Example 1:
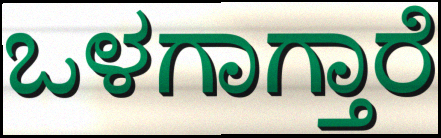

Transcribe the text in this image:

ಒಳಗಾಗ್ತಾರೆ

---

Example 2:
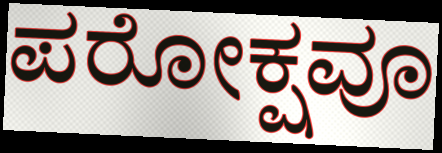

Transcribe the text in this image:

ಪರೋಕ್ಷವೂ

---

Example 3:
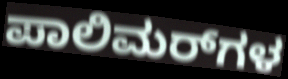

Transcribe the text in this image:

ಪಾಲಿಮರ್‌ಗಳ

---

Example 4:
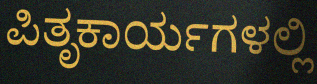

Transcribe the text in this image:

ಪಿತೃಕಾರ್ಯಗಳಲ್ಲಿ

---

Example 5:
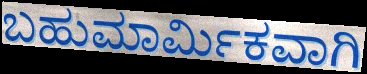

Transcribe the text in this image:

ಬಹುಮಾರ್ಮಿಕವಾಗಿ